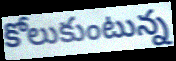
కోలుకుంటున్న